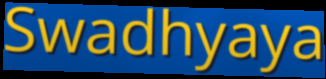
Swadhyaya